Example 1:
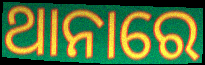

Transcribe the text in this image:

ଥାନାରେ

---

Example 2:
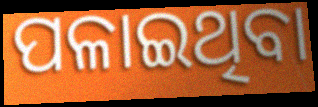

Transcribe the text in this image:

ପଳାଇଥିବା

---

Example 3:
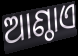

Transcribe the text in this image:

ଆଣ୍ଠାଏ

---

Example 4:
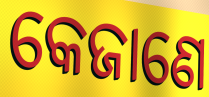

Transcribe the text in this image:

କେଜାଣେ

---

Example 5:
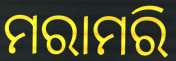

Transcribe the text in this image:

ମରାମରି